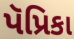
પૅપ્રિકા